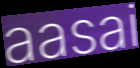
aasai